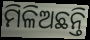
ମିଳିଅଛନ୍ତି